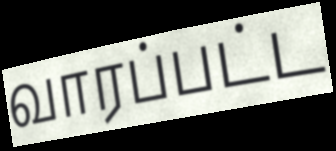
வாரப்பட்ட